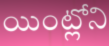
యింట్లోని